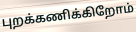
புறக்கணிக்கிறோம்